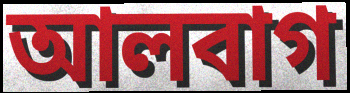
আলবাগ